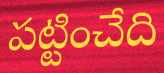
పట్టించేది